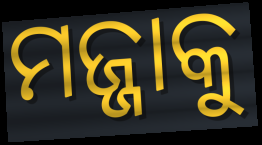
ମଜ୍ଜାକୁ